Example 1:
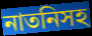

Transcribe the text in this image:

নাতনিসহ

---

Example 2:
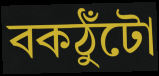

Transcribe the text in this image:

বকঠুঁটো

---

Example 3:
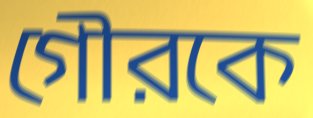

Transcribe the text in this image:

গৌরকে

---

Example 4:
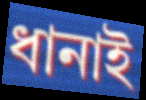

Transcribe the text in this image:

ধানাই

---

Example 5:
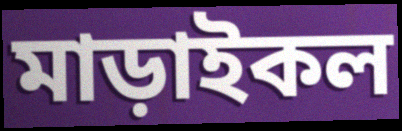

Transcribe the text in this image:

মাড়াইকল